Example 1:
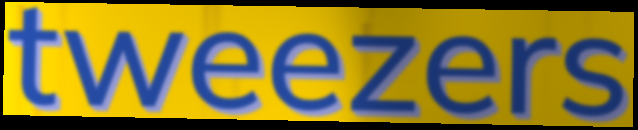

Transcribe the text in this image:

tweezers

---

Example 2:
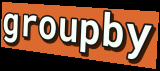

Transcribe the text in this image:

groupby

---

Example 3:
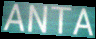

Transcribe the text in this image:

ANTA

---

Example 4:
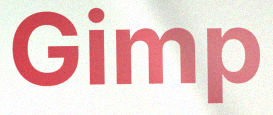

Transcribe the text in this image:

Gimp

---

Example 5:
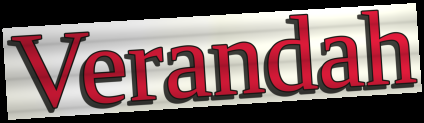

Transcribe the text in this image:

Verandah